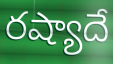
రష్యాదే